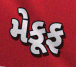
મેકૂફ